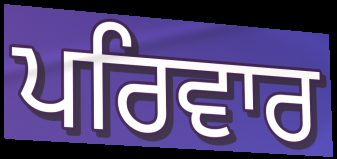
ਪਰਿਵਾਰ